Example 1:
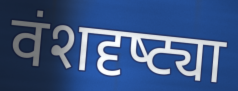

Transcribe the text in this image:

वंशदृष्ट्या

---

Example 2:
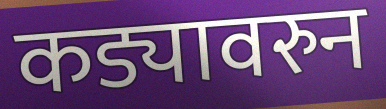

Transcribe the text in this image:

कड्यावरुन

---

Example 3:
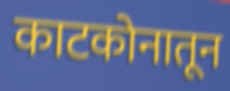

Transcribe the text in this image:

काटकोनातून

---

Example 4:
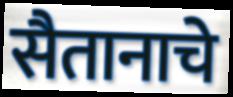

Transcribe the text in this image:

सैतानाचे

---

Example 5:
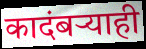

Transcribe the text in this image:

कादंबऱ्याही